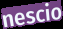
nescio